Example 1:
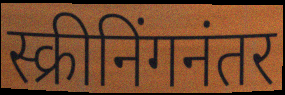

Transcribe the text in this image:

स्क्रीनिंगनंतर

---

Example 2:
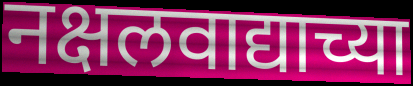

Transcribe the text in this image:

नक्षलवाद्याच्या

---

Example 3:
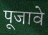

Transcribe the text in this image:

पूजावे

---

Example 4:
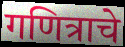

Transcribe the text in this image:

गणित्राचे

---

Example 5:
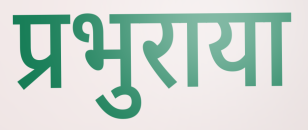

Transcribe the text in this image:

प्रभुराया